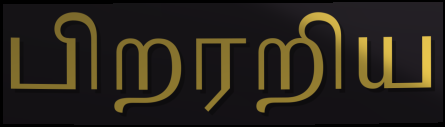
பிறரறிய